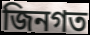
জিনগত